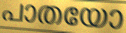
പാതയോ